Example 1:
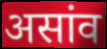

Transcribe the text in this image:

असांव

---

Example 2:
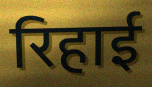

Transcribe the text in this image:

रिहाई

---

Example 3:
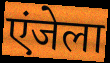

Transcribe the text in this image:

एंजेला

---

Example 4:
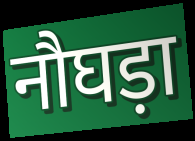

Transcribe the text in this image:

नौघड़ा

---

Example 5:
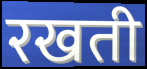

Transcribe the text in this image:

रखती